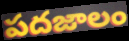
పదజాలం